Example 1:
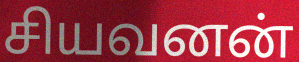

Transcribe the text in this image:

சியவனன்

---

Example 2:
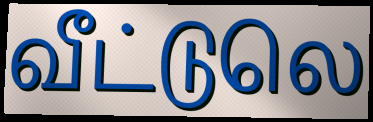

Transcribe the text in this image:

வீட்டுலெ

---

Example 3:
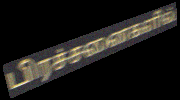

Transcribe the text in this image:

பிரச்சனைகளில்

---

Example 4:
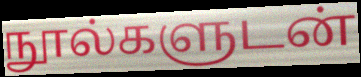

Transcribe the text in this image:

நூல்களுடன்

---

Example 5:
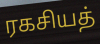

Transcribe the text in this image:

ரகசியத்